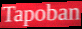
Tapoban